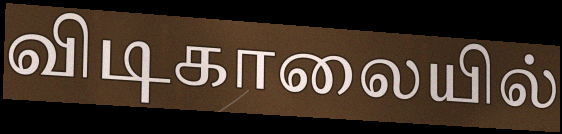
விடிகாலையில்